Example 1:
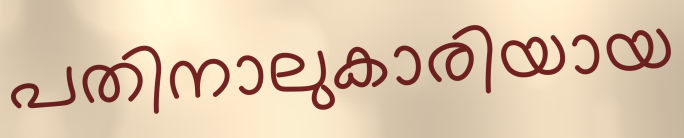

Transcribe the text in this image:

പതിനാലുകാരിയായ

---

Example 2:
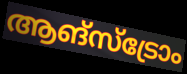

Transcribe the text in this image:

ആങ്സ്ട്രോം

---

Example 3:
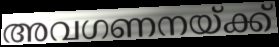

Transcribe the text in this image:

അവഗണനയ്ക്ക്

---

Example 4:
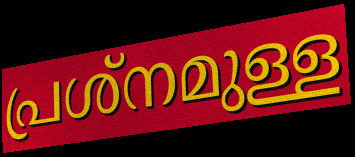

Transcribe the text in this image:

പ്രശ്നമുള്ള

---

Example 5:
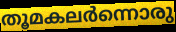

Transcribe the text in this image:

തൂമകലർന്നൊരു